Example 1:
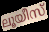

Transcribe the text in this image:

ലൂയീസ്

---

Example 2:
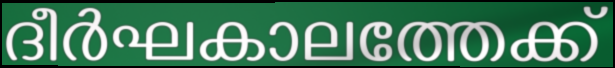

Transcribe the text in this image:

ദീർഘകാലത്തേക്ക്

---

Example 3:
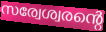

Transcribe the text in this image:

സര്വേശ്വരന്റെ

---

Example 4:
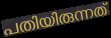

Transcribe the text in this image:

പതിയിരുന്നത്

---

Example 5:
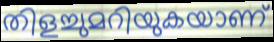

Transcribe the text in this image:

തിളച്ചുമറിയുകയാണ്